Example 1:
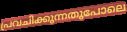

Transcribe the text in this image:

പ്രവചിക്കുന്നതുപോലെ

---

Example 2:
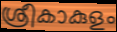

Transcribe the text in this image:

ശ്രീകാകുളം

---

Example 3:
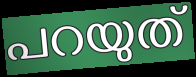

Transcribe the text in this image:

പറയുത്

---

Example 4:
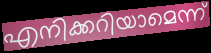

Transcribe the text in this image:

എനിക്കറിയാമെന്ന്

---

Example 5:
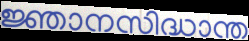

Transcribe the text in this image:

ജ്ഞാനസിദ്ധാന്ത